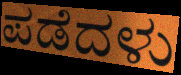
ಪಡೆದಳು